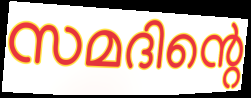
സമദിന്റെ